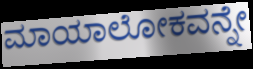
ಮಾಯಾಲೋಕವನ್ನೇ